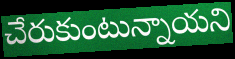
చేరుకుంటున్నాయని